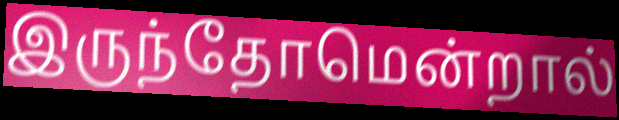
இருந்தோமென்றால்